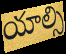
యాల్సి